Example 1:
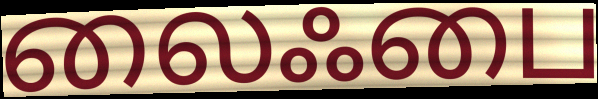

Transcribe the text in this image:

லைஃபை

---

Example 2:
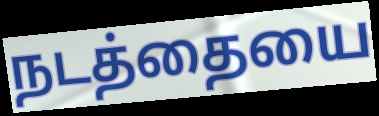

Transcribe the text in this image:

நடத்தையை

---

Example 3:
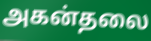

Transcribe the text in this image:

அகன்தலை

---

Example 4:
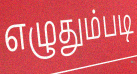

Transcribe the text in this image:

எழுதும்படி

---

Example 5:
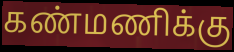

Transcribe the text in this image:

கண்மணிக்கு